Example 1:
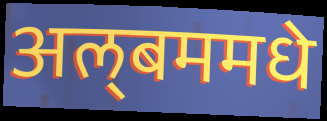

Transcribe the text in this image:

अल्बममधे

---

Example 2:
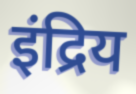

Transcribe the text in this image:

इंद्रिय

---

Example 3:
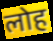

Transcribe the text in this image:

लोह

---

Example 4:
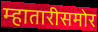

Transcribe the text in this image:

म्हातारीसमोर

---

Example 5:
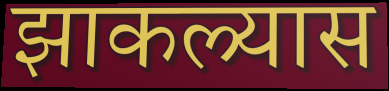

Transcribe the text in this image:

झाकल्यास